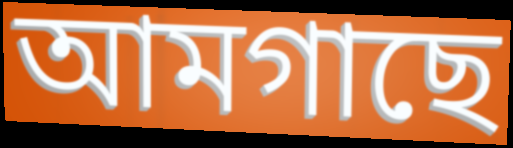
আমগাছে